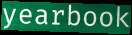
yearbook